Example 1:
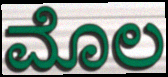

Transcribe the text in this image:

ಮೊಲ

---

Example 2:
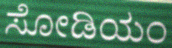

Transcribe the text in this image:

ಸೋಡಿಯಂ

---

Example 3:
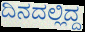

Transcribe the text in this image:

ದಿನದಲ್ಲಿದ್ದ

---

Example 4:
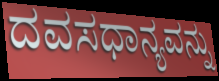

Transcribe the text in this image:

ದವಸಧಾನ್ಯವನ್ನು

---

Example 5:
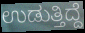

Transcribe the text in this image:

ಉಡುತ್ತಿದ್ದೆ